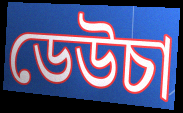
ডেউচা